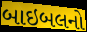
બાઇબલનો